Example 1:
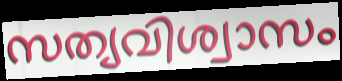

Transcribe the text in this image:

സത്യവിശ്വാസം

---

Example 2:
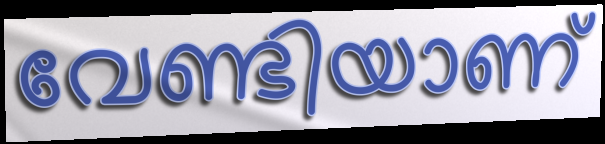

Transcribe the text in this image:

വേണ്ടിയാണ്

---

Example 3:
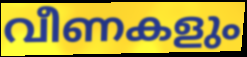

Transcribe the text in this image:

വീണകളും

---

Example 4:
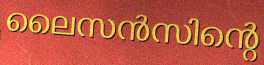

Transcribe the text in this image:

ലൈസൻസിന്റെ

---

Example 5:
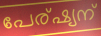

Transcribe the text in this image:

പേര്ഷ്യന്